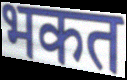
भकत